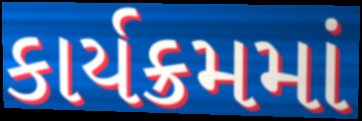
કાર્યક્રમમાં